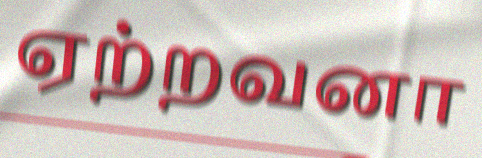
ஏற்றவனா